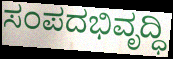
ಸಂಪದಭಿವೃದ್ಧಿ